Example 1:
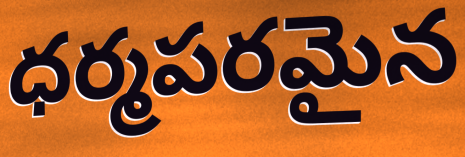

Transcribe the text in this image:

ధర్మపరమైన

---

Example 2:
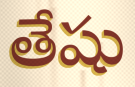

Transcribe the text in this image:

తేషు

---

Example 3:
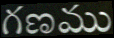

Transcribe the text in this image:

గణము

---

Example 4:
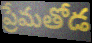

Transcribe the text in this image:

ప్రేమతోడ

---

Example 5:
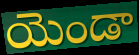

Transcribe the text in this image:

యెండా